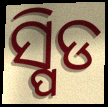
ସ୍ପିଡ